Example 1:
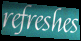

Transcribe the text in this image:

refreshes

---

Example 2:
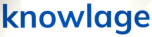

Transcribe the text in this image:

knowlage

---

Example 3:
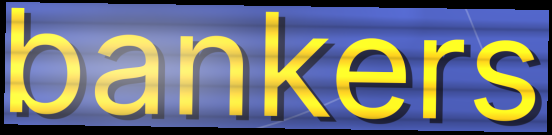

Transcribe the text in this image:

bankers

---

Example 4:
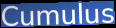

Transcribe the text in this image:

Cumulus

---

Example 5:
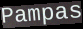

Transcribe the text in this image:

Pampas